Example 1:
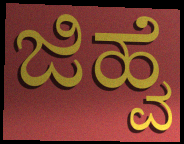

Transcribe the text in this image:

ಜಿಹ್ವೆ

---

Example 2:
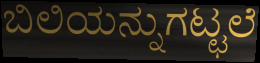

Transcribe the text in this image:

ಬಿಲಿಯನ್ನುಗಟ್ಟಲೆ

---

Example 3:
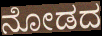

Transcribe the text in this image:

ನೋಡದ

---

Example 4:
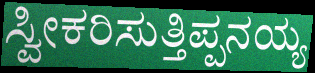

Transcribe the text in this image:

ಸ್ವೀಕರಿಸುತ್ತಿಪ್ಪನಯ್ಯ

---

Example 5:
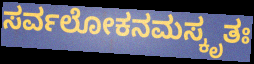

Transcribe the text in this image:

ಸರ್ವಲೋಕನಮಸ್ಕೃತಃ